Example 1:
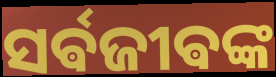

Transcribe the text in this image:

ସର୍ଵଜୀଵଙ୍କ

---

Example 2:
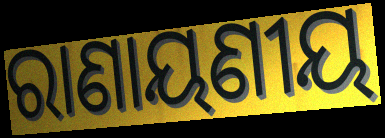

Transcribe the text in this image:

ରାଣାୟଣୀୟ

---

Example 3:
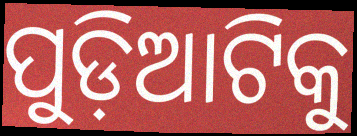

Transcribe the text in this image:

ପୁଡ଼ିଆଟିକୁ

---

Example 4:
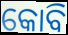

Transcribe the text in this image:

କୋବି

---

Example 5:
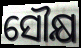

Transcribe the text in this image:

ସୌକ୍ଷ